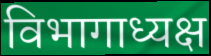
विभागाध्यक्ष